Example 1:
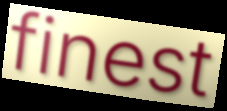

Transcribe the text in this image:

finest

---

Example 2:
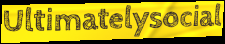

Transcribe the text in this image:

Ultimatelysocial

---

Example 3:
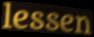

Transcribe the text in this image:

lessen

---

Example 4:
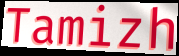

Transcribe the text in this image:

Tamizh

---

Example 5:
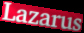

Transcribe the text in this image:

Lazarus